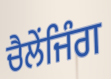
ਚੈਲੇਂਜਿੰਗ